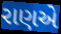
રાણએ